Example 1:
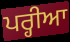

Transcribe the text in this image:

ਪਰ੍ਹੀਆ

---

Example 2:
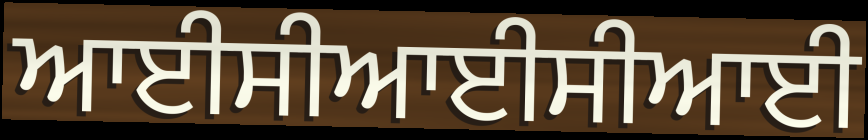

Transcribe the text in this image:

ਆਈਸੀਆਈਸੀਆਈ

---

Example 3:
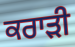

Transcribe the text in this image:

ਕਰਾੜੀ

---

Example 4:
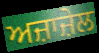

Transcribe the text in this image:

ਅਜ਼ਾਜ਼ੇਲ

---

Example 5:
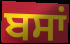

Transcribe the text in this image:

ਬਸਾਂ